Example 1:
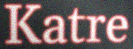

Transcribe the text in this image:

Katre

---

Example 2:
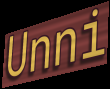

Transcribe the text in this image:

Unni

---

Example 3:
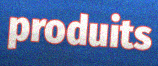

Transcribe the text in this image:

produits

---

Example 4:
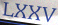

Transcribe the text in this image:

LXXV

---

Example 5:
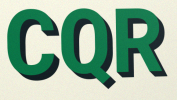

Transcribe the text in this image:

CQR